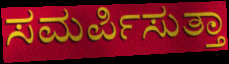
ಸಮರ್ಪಿಸುತ್ತಾ